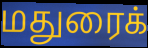
மதுரைக்